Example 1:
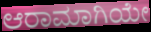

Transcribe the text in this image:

ಆರಾಮಾಗಿಯೇ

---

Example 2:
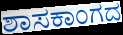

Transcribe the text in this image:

ಶಾಸಕಾಂಗದ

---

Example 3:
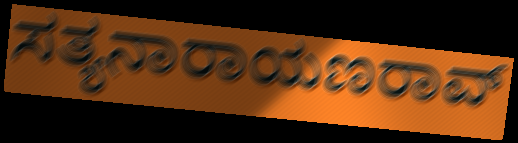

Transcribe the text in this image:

ಸತ್ಯನಾರಾಯಣರಾವ್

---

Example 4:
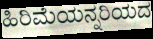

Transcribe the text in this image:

ಹಿರಿಮೆಯನ್ನರಿಯದ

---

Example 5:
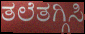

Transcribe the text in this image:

ತಲೆತಗ್ಗಿಸಿ